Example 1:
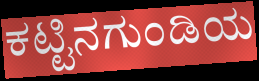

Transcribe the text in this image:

ಕಟ್ಟಿನಗುಂಡಿಯ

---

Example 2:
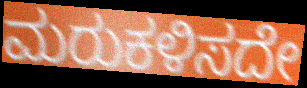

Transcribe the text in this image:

ಮರುಕಳಿಸದೇ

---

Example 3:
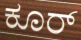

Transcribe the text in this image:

ಕೂರ್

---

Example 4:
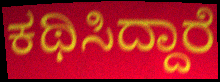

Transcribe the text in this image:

ಕಥಿಸಿದ್ದಾರೆ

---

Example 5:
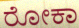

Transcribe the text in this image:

ರೋಕಾ